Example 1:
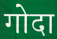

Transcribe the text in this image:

गोदा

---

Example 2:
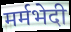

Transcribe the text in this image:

मर्मभेदी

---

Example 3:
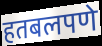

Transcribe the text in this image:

हतबलपणे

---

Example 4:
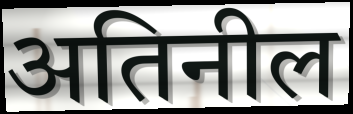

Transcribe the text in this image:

अतिनील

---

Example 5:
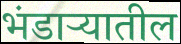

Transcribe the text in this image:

भंडाऱ्यातील